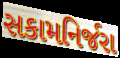
સકામનિર્જરા